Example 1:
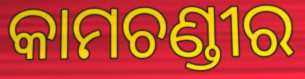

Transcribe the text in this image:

କାମଚଣ୍ଡୀର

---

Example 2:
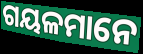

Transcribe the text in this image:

ଗୟଳମାନେ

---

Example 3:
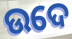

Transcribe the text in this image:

ଉଦେ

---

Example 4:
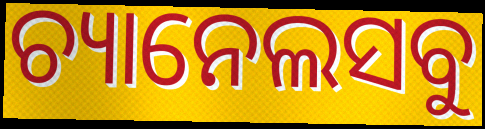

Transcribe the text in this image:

ଚ୍ୟାନେଲସବୁ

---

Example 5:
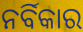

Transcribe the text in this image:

ନର୍ବିକାର